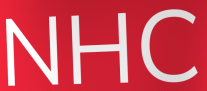
NHC